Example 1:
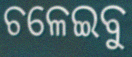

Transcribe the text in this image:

ଚଳେଇବୁ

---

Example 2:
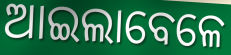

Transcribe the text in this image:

ଆଇଲାବେଳେ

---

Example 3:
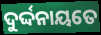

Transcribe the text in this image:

ଦୁର୍ଦ୍ଦନାୟତେ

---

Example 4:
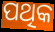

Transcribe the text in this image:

ପଥିକ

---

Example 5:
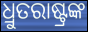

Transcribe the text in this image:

ଧ୍ରୁତରାଷ୍ଟ୍ରଙ୍କ